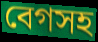
বেগসহ